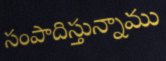
సంపాదిస్తున్నాము